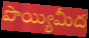
పొయ్యిమీద